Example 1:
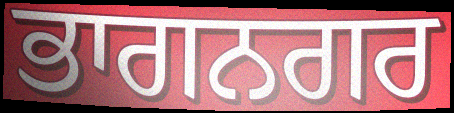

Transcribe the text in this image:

ਭਾਗਨਗਰ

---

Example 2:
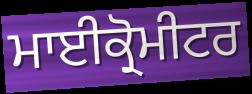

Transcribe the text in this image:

ਮਾਈਕ੍ਰੋਮੀਟਰ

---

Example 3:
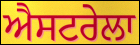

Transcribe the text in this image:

ਐਸਟਰੇਲਾ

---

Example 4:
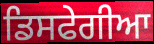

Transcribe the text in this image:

ਡਿਸਫੇਗੀਆ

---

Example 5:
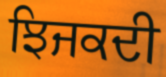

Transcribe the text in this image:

ਝਿਜਕਦੀ